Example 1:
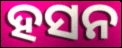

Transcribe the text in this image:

ହସନ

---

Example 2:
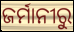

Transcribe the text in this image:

ଜର୍ମାନୀରୁ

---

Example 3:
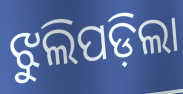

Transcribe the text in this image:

ଝୁଲିପଡ଼ିଲା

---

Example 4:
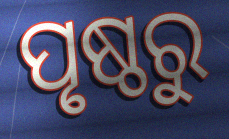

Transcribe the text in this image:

ପୃଷ୍ଠରୁ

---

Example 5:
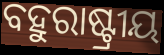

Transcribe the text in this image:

ବହୁରାଷ୍ଟ୍ରୀୟ